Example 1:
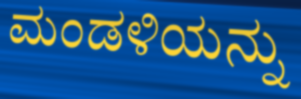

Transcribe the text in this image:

ಮಂಡಳಿಯನ್ನು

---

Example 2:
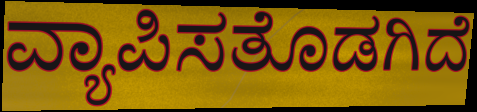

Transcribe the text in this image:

ವ್ಯಾಪಿಸತೊಡಗಿದೆ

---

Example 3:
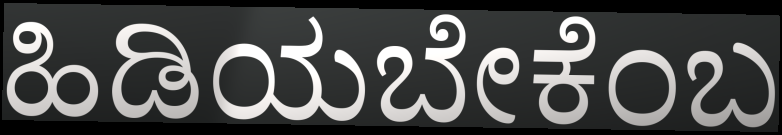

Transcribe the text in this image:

ಹಿಡಿಯಬೇಕೆಂಬ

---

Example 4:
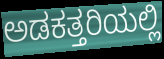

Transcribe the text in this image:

ಅಡಕತ್ತರಿಯಲ್ಲಿ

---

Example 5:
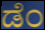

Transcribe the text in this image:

ಡೆಂ